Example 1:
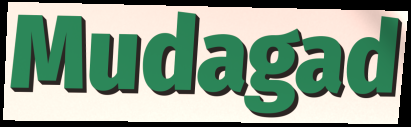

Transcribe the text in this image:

Mudagad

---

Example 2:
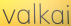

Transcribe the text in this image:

valkai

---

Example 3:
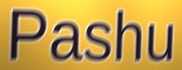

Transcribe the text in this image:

Pashu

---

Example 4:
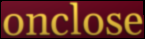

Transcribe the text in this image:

onclose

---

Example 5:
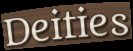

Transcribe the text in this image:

Deities